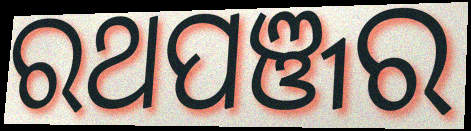
ରଥପଞ୍ଜର